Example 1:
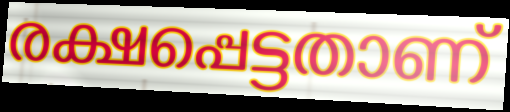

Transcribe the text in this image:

രക്ഷപ്പെട്ടതാണ്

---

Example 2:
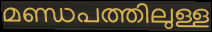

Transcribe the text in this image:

മണ്ഡപത്തിലുള്ള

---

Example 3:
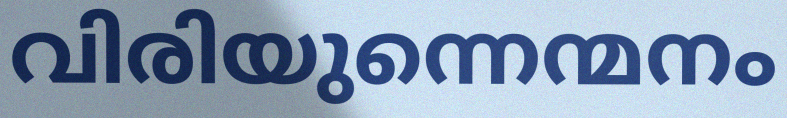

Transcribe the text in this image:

വിരിയുന്നെന്മനം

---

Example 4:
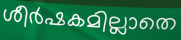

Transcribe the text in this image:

ശീർഷകമില്ലാതെ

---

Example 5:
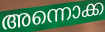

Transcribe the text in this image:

അന്നൊക്ക